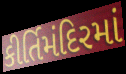
કીર્તિમંદિરમાં